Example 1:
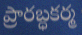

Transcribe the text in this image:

ప్రారబ్ధకర్మ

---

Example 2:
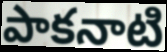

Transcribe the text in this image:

పాకనాటి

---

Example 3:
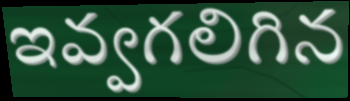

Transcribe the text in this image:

ఇవ్వగలిగిన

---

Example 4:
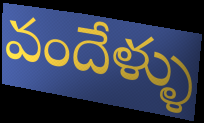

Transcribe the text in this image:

వందేళ్ళు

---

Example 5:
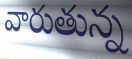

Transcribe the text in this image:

వారుతున్న